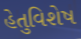
હેતુવિશેષ